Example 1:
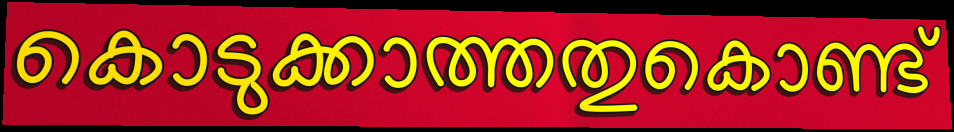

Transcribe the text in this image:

കൊടുക്കാത്തതുകൊണ്ട്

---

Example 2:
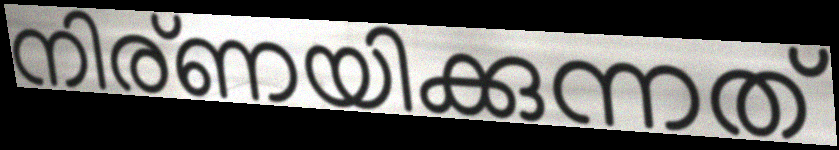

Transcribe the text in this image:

നിര്ണയിക്കുന്നത്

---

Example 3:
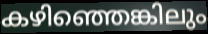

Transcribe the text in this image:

കഴിഞ്ഞെങ്കിലും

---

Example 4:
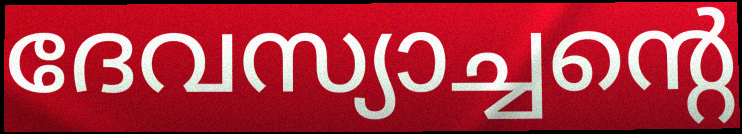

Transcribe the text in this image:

ദേവസ്യാച്ചന്റെ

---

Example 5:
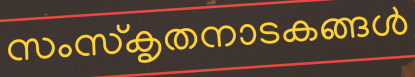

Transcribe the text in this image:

സംസ്കൃതനാടകങ്ങൾ